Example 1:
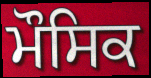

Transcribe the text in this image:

ਮੌਸਿਕ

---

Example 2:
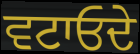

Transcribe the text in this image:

ਵਟਾਓਦੇ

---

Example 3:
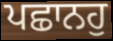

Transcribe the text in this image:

ਪਛਾਨਹੁ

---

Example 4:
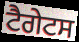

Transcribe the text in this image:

ਟੈਗੇਟਸ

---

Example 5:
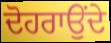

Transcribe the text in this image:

ਦੋਹਰਾਉਂਦੇ